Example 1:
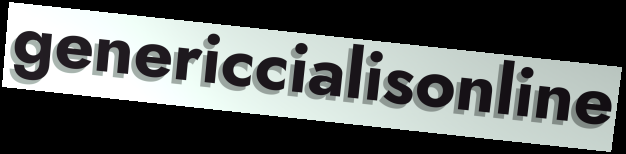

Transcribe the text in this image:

genericcialisonline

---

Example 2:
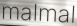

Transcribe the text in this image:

malmal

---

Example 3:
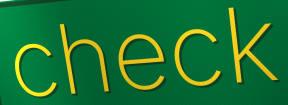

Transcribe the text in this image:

check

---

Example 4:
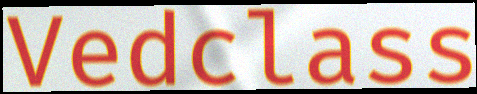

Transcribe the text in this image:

Vedclass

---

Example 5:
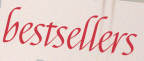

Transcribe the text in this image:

bestsellers